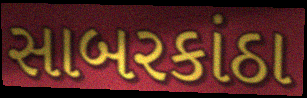
સાબરકાંઠા